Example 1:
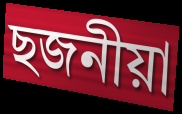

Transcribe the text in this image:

ছজনীয়া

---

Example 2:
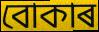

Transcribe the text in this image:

বোকাৰ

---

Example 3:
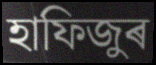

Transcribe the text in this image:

হাফিজুৰ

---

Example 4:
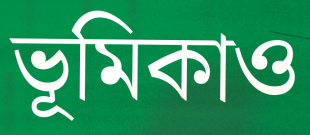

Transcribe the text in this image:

ভূমিকাও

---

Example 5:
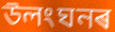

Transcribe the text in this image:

উলংঘনৰ